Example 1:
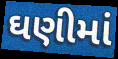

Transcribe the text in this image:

ઘણીમાં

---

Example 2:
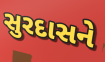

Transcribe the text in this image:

સુરદાસને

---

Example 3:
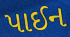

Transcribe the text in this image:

પાઈન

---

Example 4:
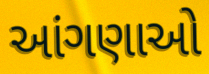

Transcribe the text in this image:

આંગણાઓ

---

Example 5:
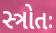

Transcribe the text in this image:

સ્ત્રોતઃ